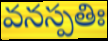
వనస్పతిః